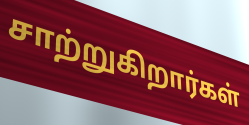
சாற்றுகிறார்கள்